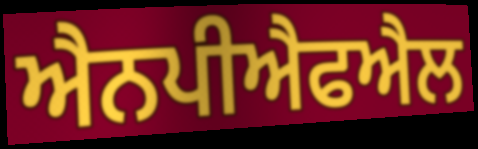
ਐਨਪੀਐਫਐਲ